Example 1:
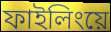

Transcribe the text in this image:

ফাইলিংয়ে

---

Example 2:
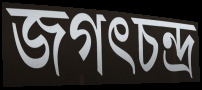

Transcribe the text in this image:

জগৎচন্দ্র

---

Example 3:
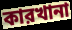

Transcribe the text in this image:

কারখানা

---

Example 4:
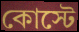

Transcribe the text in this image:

কোস্টে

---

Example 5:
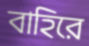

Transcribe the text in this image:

বাহিরে